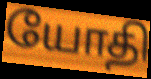
யோதி